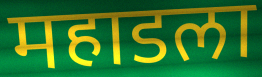
महाडला